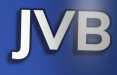
JVB